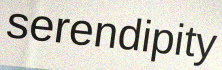
serendipity